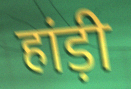
हांड़ी